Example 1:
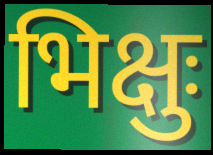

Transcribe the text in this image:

भिक्षुः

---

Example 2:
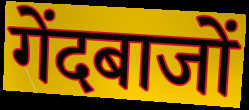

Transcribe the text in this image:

गेंदबाजों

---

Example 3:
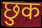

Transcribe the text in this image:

छुक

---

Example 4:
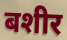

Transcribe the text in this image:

बशीर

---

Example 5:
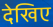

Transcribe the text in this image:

देखिए